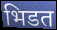
भिडत